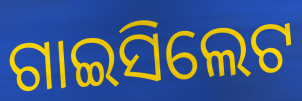
ଗାଇସିଲେଟ